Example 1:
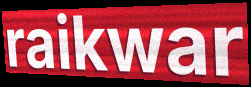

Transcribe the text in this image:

raikwar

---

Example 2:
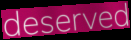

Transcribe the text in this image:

deserved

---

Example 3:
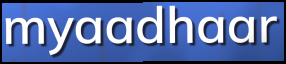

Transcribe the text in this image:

myaadhaar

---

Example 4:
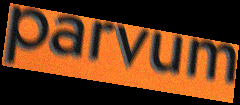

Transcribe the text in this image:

parvum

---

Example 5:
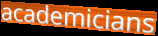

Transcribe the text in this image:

academicians